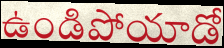
ఉండిపోయాడో